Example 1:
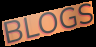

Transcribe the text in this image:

BLOGS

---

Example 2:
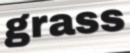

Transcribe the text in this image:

grass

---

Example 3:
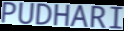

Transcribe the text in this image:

PUDHARI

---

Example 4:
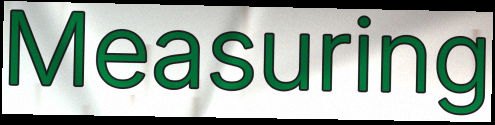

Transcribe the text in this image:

Measuring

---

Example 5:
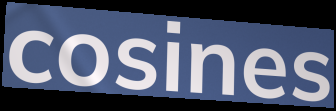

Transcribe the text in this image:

cosines